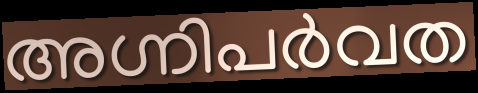
അഗ്നിപർവത